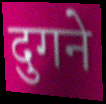
दुगने